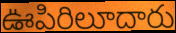
ఊపిరిలూదారు